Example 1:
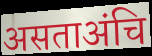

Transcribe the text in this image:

असताअंचि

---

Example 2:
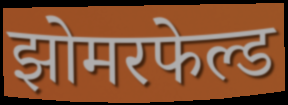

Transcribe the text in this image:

झोमरफेल्ड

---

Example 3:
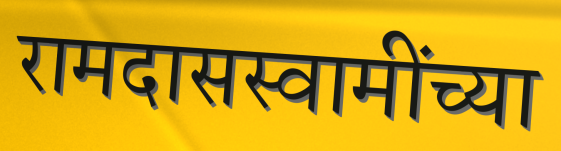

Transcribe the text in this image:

रामदासस्वामींच्या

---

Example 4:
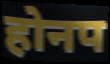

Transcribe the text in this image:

होनप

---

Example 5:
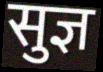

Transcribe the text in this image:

सुज्ञ